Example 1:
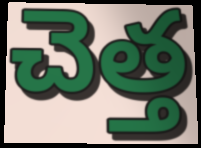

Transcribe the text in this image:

చెత్త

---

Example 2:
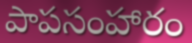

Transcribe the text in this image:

పాపసంహారం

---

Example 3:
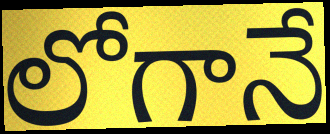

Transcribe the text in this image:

లోగానే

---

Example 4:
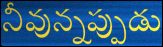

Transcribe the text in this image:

నీవున్నప్పుడు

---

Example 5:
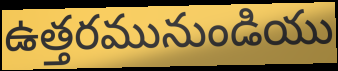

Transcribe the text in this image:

ఉత్తరమునుండియు